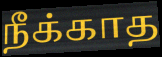
நீக்காத